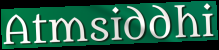
Atmsiddhi